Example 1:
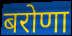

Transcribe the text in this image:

बरोणा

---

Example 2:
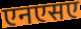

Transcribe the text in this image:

एनएसए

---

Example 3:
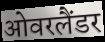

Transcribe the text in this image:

ओवरलैंडर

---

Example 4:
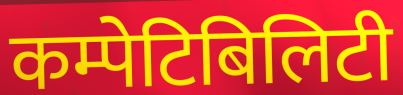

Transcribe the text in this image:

कम्पेटिबिलिटी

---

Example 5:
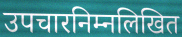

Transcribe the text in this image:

उपचारनिम्नलिखित